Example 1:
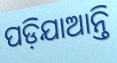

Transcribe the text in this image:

ପଡ଼ିଯାଆନ୍ତି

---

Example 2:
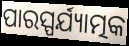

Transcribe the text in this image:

ପାରସ୍ପର୍ଯ୍ୟାତ୍ମକ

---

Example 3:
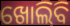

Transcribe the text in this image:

ଖୋଲିବି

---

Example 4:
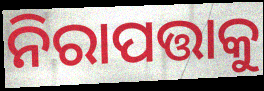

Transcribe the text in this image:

ନିରାପତ୍ତାକୁ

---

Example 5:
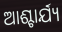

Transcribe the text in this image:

ଆଶ୍ଚାର୍ଯ୍ୟ